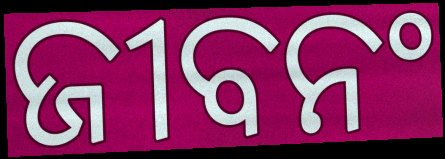
ଜୀବନଂ